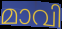
മാവി